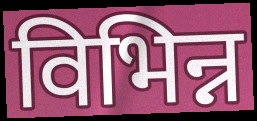
विभिन्न